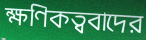
ক্ষণিকত্ববাদের